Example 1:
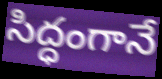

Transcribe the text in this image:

సిద్ధంగానే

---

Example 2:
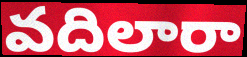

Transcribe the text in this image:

వదిలారా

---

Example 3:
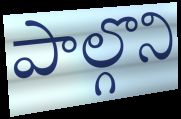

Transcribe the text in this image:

పాల్గొని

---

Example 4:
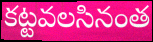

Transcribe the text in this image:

కట్టవలసినంత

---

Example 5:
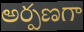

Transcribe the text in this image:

అర్పణగా